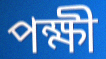
পক্ষী